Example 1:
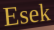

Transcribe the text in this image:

Esek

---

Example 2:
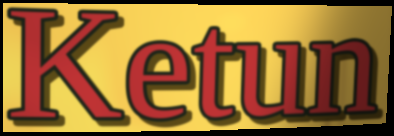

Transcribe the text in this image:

Ketun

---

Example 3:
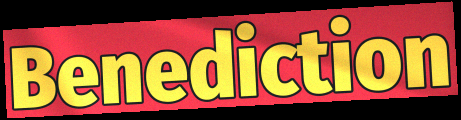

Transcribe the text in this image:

Benediction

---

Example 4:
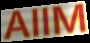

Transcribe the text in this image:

AIIM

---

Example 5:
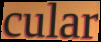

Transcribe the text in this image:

cular